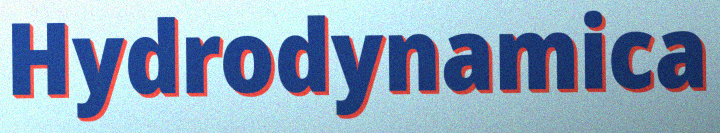
Hydrodynamica